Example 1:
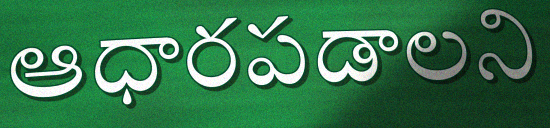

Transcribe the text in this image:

ఆధారపడాలని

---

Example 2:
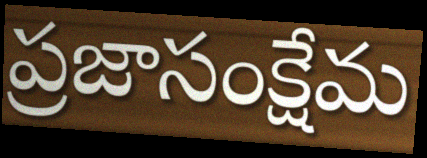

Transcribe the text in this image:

ప్రజాసంక్షేమ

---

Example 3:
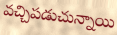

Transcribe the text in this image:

వచ్చిపడుచున్నాయి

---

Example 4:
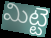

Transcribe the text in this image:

మిట్టె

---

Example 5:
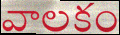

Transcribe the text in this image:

వాలకం